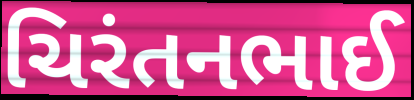
ચિરંતનભાઈ